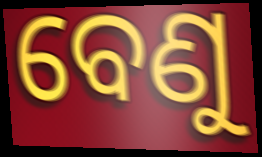
ବେଣୁ